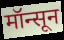
मॉन्सून